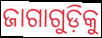
ଜାଗାଗୁଡ଼ିକୁ